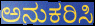
ಅನುಕರಿಸಿ